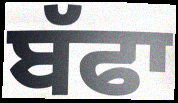
ਬੱਫਾ